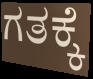
ಗತಕ್ಕೆ